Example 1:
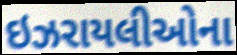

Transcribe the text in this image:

ઇઝરાયલીઓના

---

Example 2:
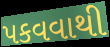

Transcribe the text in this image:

પકવવાથી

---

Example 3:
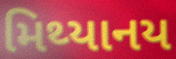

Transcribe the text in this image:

મિથ્યાનય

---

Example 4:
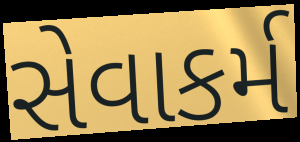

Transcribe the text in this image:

સેવાકર્મ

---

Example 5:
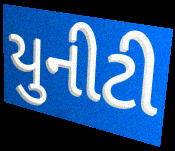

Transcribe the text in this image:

યુનીટી